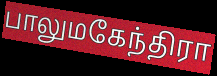
பாலுமகேந்திரா